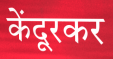
केंदूरकर